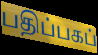
பதிப்பகப்